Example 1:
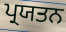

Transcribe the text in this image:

ਪ੍ਰਯਤਨ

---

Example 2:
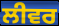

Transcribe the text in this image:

ਲੀਵਰ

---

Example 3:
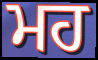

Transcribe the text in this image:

ਮਹ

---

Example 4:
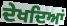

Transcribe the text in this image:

ਦੇਖਦਿਆਂ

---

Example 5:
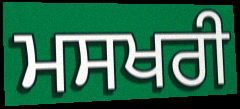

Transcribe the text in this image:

ਮਸਖਰੀ